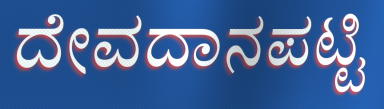
ದೇವದಾನಪಟ್ಟಿ